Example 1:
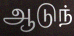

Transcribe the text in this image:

ஆடுந்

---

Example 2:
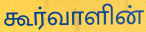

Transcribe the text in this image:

கூர்வாளின்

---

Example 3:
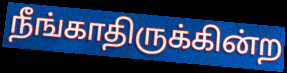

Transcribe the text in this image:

நீங்காதிருக்கின்ற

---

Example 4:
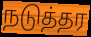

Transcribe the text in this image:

நடுத்தர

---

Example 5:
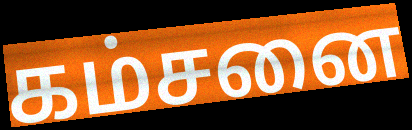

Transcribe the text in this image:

கம்சனை